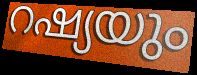
റഷ്യയും